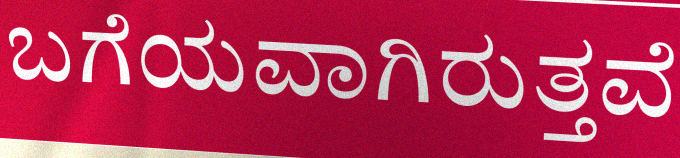
ಬಗೆಯವಾಗಿರುತ್ತವೆ